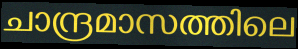
ചാന്ദ്രമാസത്തിലെ